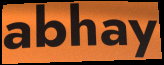
abhay